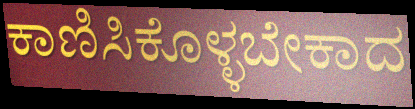
ಕಾಣಿಸಿಕೊಳ್ಳಬೇಕಾದ